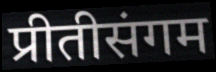
प्रीतीसंगम